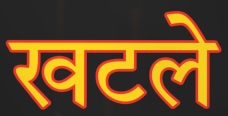
खटले